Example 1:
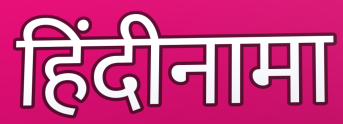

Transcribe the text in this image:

हिंदीनामा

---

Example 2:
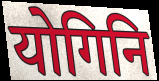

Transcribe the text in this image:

योगिनि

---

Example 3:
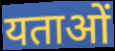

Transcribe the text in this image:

यताओं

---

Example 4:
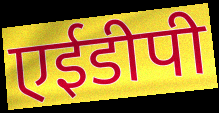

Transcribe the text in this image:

एईडीपी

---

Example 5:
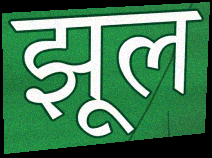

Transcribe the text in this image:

झूल